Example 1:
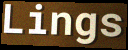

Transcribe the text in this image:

Lings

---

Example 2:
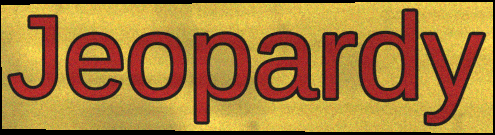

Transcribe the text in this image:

Jeopardy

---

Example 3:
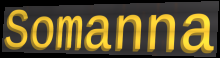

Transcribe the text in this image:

Somanna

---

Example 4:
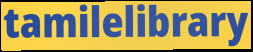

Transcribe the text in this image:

tamilelibrary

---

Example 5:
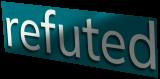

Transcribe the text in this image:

refuted